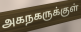
அகநகருக்குள்